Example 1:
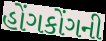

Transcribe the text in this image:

હોંગકોંગની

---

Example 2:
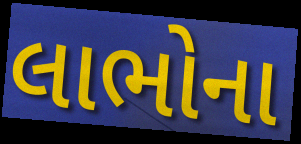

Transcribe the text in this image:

લાભોના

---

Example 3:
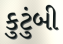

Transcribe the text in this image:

કુટુંબી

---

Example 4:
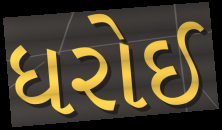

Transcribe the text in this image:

ધરોઈ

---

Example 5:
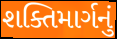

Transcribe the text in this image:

શક્તિમાર્ગનું